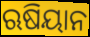
ଋଷିୟାନ